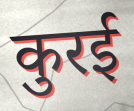
कुरई